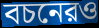
বচনেরও